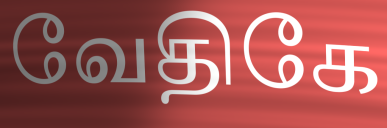
வேதிகே